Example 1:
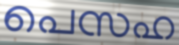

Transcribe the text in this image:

പെസഹ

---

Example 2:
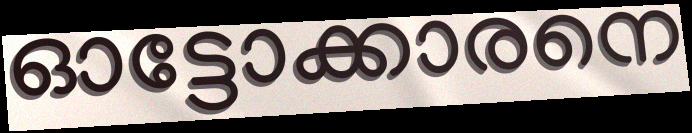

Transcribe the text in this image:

ഓട്ടോക്കാരനെ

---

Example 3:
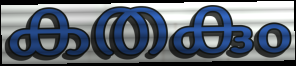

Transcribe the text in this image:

കതകും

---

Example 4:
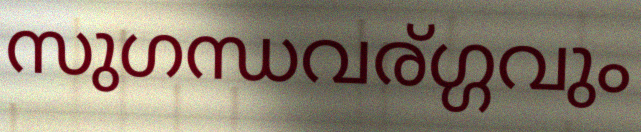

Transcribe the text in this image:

സുഗന്ധവര്ഗ്ഗവും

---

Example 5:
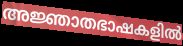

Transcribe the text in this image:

അജ്ഞാതഭാഷകളിൽ